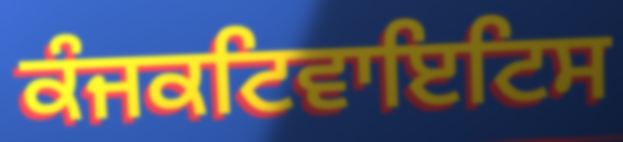
ਕੰਜਕਟਿਵਾਇਟਿਸ